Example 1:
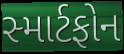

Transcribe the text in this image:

સ્માર્ટફોન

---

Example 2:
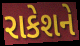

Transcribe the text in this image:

રાકેશને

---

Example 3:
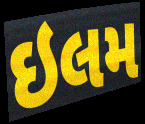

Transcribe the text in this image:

ઇલમ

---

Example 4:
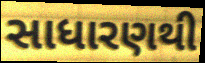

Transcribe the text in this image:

સાધારણથી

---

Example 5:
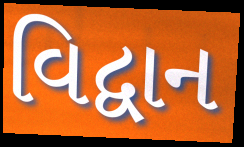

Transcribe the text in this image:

વિદ્વાન